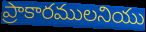
ప్రాకారములనియు